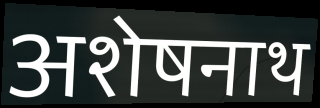
अशेषनाथ